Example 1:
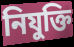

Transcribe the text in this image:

নিযুক্তি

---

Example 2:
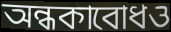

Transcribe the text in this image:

অন্ধকাবোধও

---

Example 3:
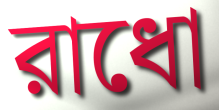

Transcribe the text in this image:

রাধো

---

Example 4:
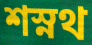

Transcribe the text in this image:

শস্নথ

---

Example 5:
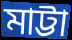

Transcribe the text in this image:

মাট্টা